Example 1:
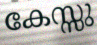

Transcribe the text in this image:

കേസ്സു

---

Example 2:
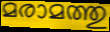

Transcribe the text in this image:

മരാമത്തു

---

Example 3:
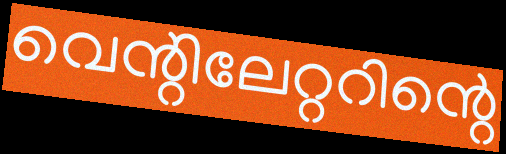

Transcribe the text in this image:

വെന്റിലേറ്ററിന്റെ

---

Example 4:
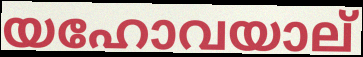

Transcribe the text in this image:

യഹോവയാല്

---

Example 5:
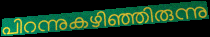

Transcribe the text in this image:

പിറന്നുകഴിഞ്ഞിരുന്നു